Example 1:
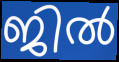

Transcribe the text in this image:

ജിൽ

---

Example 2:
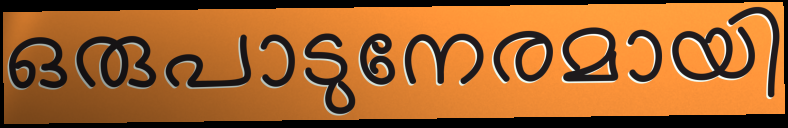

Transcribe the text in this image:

ഒരുപാടുനേരമായി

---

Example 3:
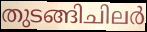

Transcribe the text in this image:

തുടങ്ങിചിലർ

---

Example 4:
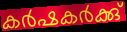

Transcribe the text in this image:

കർഷകർക്കു്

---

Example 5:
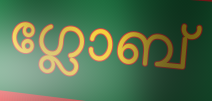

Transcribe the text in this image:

ഗ്ലോബ്